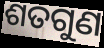
ଶତଗୁଣ